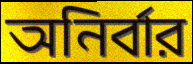
অনির্বার